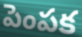
పెంపక